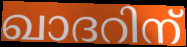
ഖാദറിന്